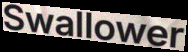
Swallower